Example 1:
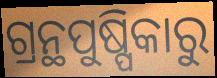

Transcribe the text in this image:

ଗ୍ରନ୍ଥପୁଷ୍ପିକାରୁ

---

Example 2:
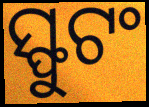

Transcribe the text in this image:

ସ୍ଫୁଟଂ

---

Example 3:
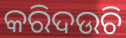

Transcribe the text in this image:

କରିଦଉଚି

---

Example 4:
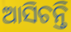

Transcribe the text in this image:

ଆସିଚନ୍ତି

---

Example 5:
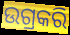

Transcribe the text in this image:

ଉଗ୍ରକରି